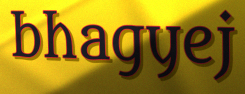
bhagyej